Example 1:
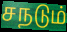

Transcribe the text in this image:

சநடும்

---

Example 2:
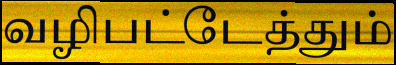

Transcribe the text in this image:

வழிபட்டேத்தும்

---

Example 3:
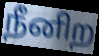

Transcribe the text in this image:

நீனிற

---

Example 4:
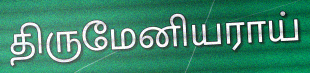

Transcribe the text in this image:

திருமேனியராய்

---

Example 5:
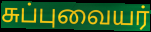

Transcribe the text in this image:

சுப்புவையர்